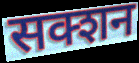
सक्शन